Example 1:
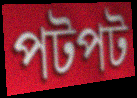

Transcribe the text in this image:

পটপট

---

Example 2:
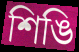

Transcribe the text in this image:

শিঙি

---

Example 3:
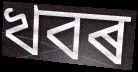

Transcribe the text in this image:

খবৰ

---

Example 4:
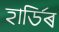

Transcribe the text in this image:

হাৰ্ডিৰ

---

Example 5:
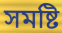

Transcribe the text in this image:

সমষ্টি